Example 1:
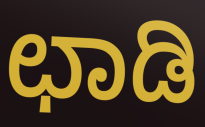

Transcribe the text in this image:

ಛಾಡಿ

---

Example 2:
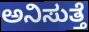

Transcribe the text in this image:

ಅನಿಸುತ್ತೆ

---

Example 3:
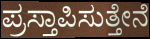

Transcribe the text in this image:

ಪ್ರಸ್ತಾಪಿಸುತ್ತೇನೆ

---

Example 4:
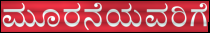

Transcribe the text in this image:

ಮೂರನೆಯವರಿಗೆ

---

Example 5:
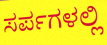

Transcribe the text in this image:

ಸರ್ಪಗಳಲ್ಲಿ